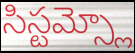
సిస్టమ్స్లో